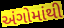
અંગોમાંથી